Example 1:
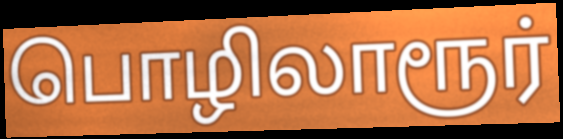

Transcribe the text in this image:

பொழிலாரூர்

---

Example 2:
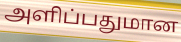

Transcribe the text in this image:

அளிப்பதுமான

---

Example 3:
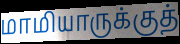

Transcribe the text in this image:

மாமியாருக்குத்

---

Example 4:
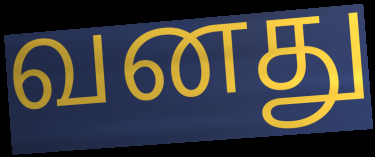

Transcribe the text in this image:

வனது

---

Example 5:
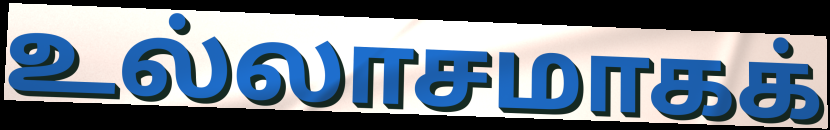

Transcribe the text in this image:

உல்லாசமாகக்